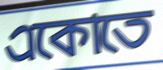
একোতে